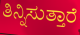
ತಿನ್ನಿಸುತ್ತಾರೆ